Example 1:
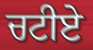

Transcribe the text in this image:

ਚਟੀਏ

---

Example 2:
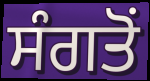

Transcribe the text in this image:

ਸੰਗਤੋਂ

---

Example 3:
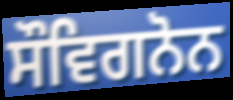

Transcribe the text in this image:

ਸੌਵਿਗਨੋਨ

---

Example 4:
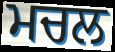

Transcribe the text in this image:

ਮਚਲ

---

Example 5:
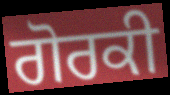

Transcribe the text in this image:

ਗੋਰਕੀ